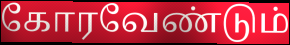
கோரவேண்டும்